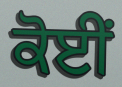
ਕੋਈਂ